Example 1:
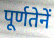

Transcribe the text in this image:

पूर्णतेनें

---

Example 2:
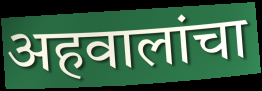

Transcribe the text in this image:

अहवालांचा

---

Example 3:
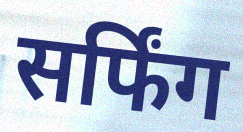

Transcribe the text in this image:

सर्फिंग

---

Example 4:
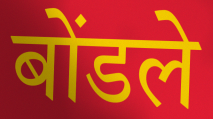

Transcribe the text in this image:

बोंडले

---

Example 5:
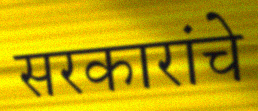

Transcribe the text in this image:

सरकारांचे